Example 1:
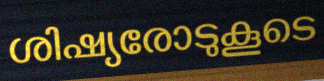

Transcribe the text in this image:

ശിഷ്യരോടുകൂടെ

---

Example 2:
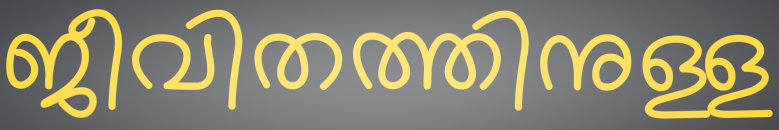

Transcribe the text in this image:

ജീവിതത്തിനുള്ള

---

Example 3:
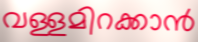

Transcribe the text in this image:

വള്ളമിറക്കാൻ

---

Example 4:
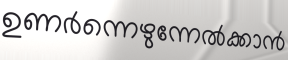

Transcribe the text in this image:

ഉണർന്നെഴുന്നേൽക്കാൻ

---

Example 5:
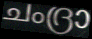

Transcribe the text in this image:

ചംദ്രാ